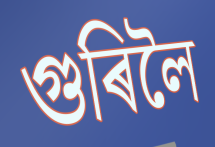
গুৰিলৈ